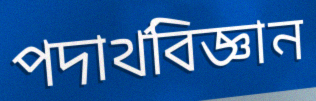
পদার্থবিজ্ঞান